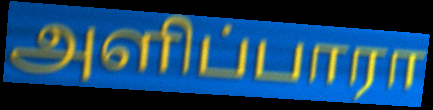
அளிப்பாரா